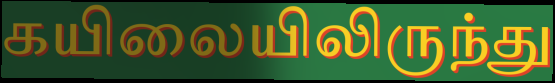
கயிலையிலிருந்து